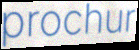
prochur